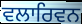
ਵਲਾਰਿਵਨ